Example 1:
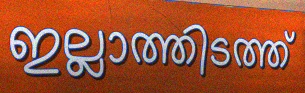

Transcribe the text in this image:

ഇല്ലാത്തിടത്ത്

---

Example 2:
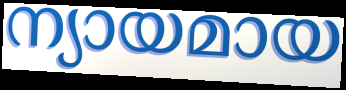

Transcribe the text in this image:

ന്യായമായ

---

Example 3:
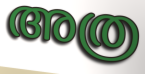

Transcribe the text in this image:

അത്ര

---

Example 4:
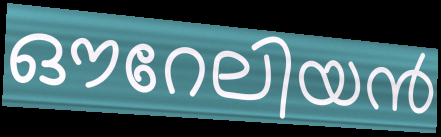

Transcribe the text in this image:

ഔറേലിയൻ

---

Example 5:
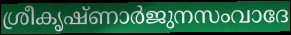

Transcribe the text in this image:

ശ്രീകൃഷ്ണാർജുനസംവാദേ